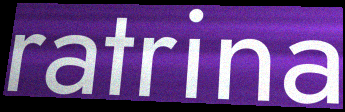
ratrina